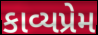
કાવ્યપ્રેમ